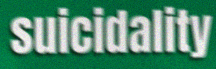
suicidality